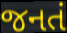
જનતં